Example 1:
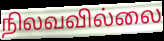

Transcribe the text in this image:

நிலவவில்லை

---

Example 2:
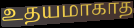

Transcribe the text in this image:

உதயமாகாத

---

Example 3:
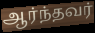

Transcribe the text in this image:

ஆர்ந்தவர்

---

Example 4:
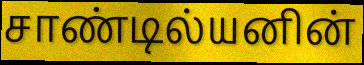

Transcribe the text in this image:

சாண்டில்யனின்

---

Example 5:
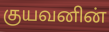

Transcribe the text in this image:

குயவனின்